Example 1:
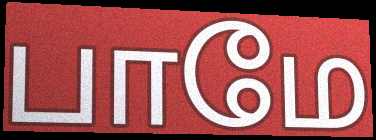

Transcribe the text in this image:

பாமே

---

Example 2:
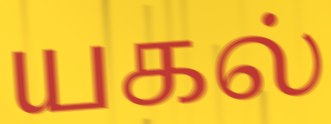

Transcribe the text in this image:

யகல்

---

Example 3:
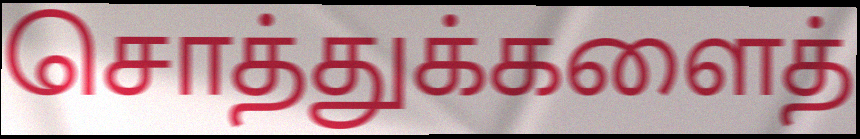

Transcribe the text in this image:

சொத்துக்களைத்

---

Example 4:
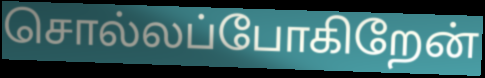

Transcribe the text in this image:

சொல்லப்போகிறேன்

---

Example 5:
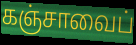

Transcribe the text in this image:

கஞ்சாவைப்